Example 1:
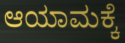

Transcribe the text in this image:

ಆಯಾಮಕ್ಕೆ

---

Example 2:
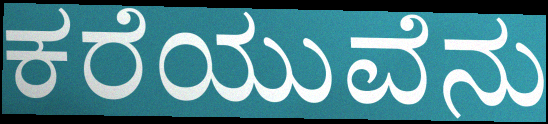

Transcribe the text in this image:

ಕರೆಯುವೆನು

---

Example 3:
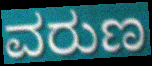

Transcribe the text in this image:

ವರುಣ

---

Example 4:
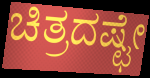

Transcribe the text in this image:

ಚಿತ್ರದಷ್ಟೇ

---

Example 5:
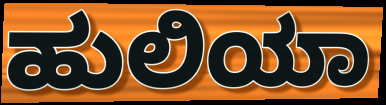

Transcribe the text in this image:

ಹುಲಿಯಾ